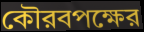
কৌরবপক্ষের